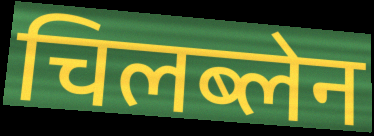
चिलब्लेन